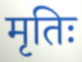
मृतिः